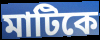
মাটিকে